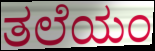
ತಲೆಯಂ